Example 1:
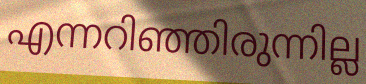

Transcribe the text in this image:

എന്നറിഞ്ഞിരുന്നില്ല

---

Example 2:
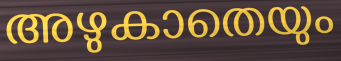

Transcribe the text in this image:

അഴുകാതെയും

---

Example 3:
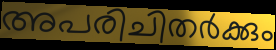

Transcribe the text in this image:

അപരിചിതർക്കും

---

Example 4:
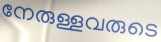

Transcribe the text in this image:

നേരുള്ളവരുടെ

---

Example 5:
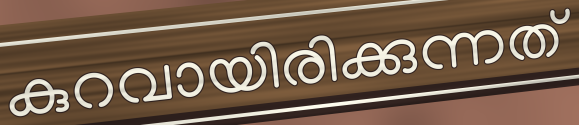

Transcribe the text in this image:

കുറവായിരിക്കുന്നത്